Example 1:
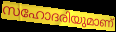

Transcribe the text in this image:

സഹോദരിയുമാണ്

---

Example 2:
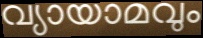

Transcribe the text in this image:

വ്യായാമവും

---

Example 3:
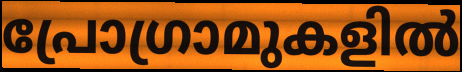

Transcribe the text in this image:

പ്രോഗ്രാമുകളിൽ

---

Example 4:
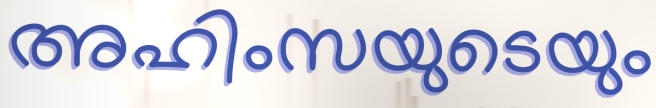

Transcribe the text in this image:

അഹിംസയുടെയും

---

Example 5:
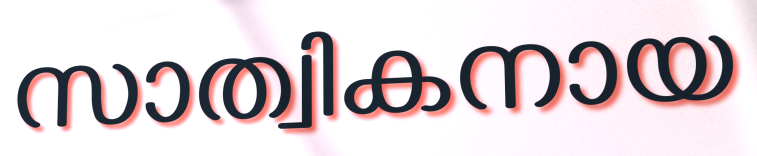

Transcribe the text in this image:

സാത്വികനായ